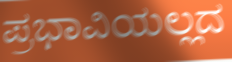
ಪ್ರಭಾವಿಯಲ್ಲದ